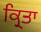
ਕ੍ਰਿਤਾ